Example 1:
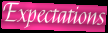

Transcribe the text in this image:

Expectations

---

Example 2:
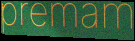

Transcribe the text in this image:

premam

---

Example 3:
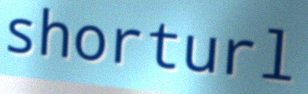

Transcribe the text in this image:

shorturl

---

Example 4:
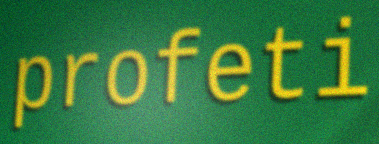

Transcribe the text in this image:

profeti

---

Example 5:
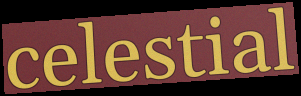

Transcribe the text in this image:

celestial